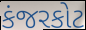
કંજરકોટ